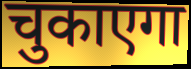
चुकाएगा